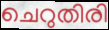
ചെറുതിരി